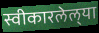
स्वीकारलेल्या